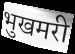
भुखमरी